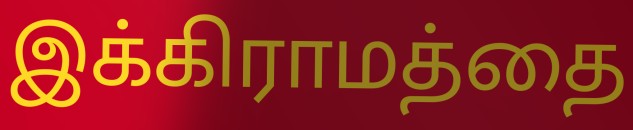
இக்கிராமத்தை